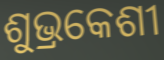
ଶୁଭ୍ରକେଶୀ